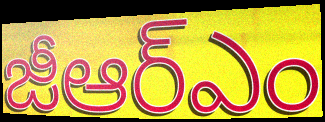
జీఆర్ఎం